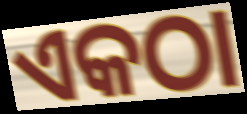
ଏକଠା